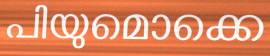
പിയുമൊക്കെ